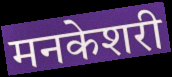
मनकेशरी